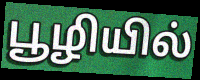
பூழியில்